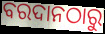
ବରଦାନଠାରୁ